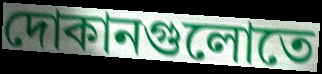
দোকানগুলোতে